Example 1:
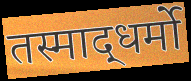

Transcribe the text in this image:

तस्माद्धर्मो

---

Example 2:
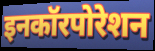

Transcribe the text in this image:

इनकॉरपोरेशन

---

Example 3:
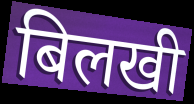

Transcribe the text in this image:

बिलखी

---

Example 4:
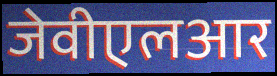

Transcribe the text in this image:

जेवीएलआर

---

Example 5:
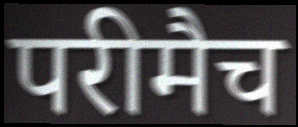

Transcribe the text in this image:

परीमैच